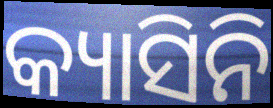
କ୍ୟାସିନି